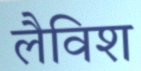
लैविश